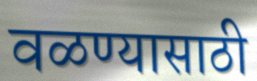
वळण्यासाठी